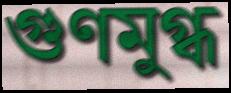
গুণমুগ্ধ